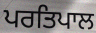
ਪਰਤਿਪਾਲ